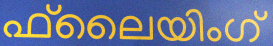
ഫ്‌ലൈയിംഗ്